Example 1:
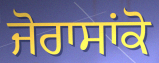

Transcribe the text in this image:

ਜੋਰਾਸਾਂਕੋ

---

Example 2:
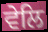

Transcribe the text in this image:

ਵੇਲਿ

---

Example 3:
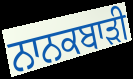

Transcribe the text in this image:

ਨਾਨਕਬਾੜੀ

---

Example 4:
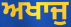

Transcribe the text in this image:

ਅਖਾਜੁ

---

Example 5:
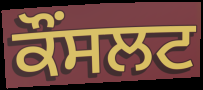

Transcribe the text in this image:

ਕੌਂਸਲਟ